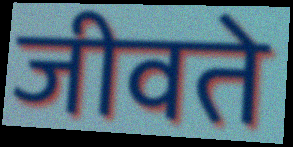
जीवते